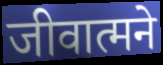
जीवात्मने